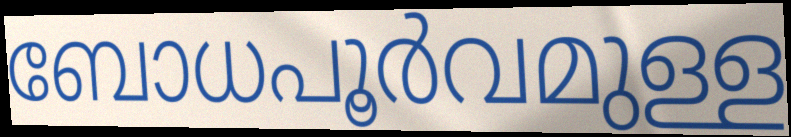
ബോധപൂർവമുള്ള